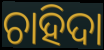
ଚାହିଦା